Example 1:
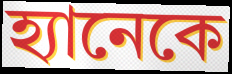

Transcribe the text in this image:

হ্যানেকে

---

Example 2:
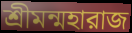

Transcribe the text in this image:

শ্রীমন্মহারাজ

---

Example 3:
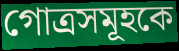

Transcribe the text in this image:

গোত্রসমূহকে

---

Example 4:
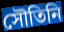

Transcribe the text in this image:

সৌতিনি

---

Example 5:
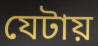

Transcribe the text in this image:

যেটায়